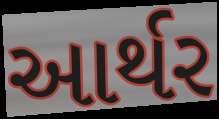
આર્થર